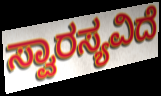
ಸ್ವಾರಸ್ಯವಿದೆ